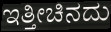
ಇತ್ತೀಚಿನದು